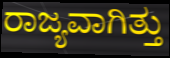
ರಾಜ್ಯವಾಗಿತ್ತು